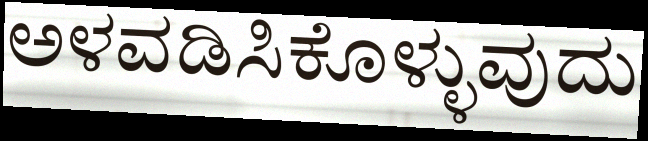
ಅಳವಡಿಸಿಕೊಳ್ಳುವುದು